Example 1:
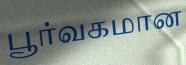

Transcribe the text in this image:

பூர்வகமான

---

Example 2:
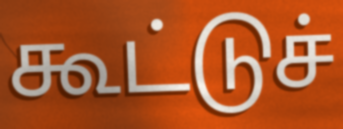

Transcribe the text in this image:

கூட்டுச்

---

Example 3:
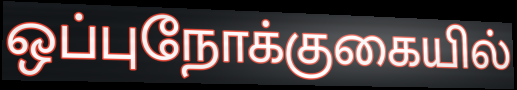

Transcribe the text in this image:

ஒப்புநோக்குகையில்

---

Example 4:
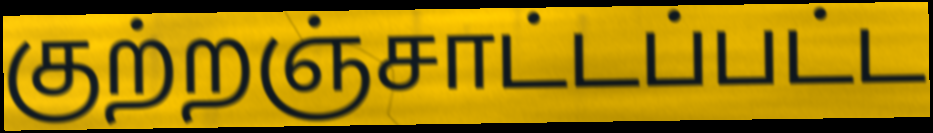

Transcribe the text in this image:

குற்றஞ்சாட்டப்பட்ட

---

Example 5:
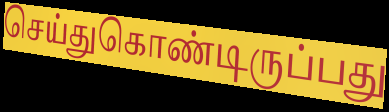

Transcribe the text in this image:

செய்துகொண்டிருப்பது